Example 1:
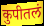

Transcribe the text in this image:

कुपीतलं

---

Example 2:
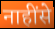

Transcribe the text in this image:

नाहींसे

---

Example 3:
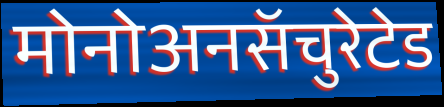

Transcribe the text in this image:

मोनोअनसॅचुरेटेड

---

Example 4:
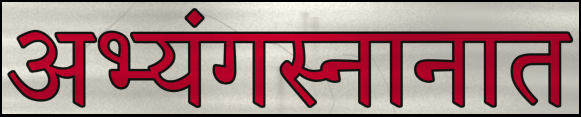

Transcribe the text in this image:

अभ्यंगस्नानात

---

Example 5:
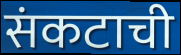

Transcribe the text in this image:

संकटाची